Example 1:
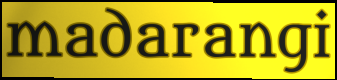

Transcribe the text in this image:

madarangi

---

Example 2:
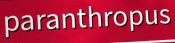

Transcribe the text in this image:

paranthropus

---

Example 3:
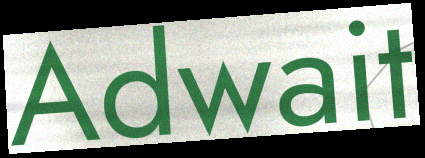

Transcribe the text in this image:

Adwait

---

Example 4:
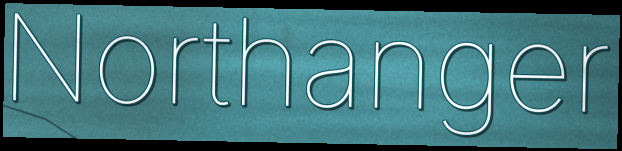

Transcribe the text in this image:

Northanger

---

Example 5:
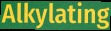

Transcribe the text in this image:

Alkylating